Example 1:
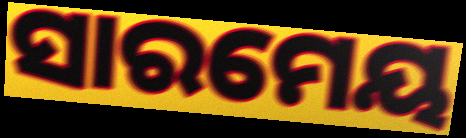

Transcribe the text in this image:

ସାରମେୟ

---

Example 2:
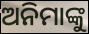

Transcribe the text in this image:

ଅନିମାଙ୍କୁ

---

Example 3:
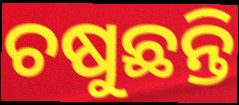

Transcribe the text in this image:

ଚଷୁଛନ୍ତି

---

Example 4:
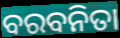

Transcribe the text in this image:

ବରବନିତା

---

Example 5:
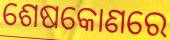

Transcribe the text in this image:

ଶେଷକୋଣରେ